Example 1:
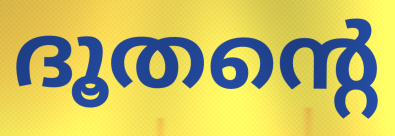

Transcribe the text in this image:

ദൂതന്റെ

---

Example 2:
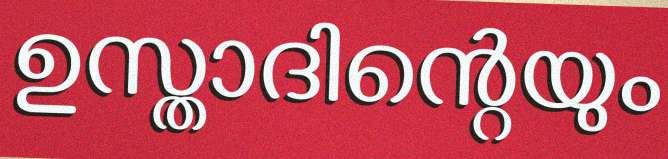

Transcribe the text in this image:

ഉസ്താദിന്റെയും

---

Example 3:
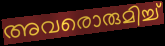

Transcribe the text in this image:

അവരൊരുമിച്ച്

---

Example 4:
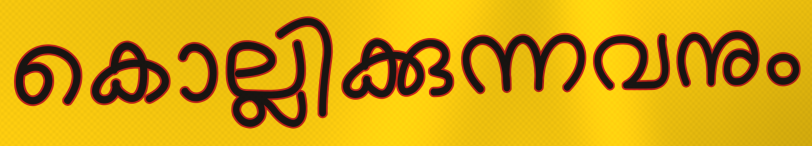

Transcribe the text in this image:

കൊല്ലിക്കുന്നവനും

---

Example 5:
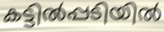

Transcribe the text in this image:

കട്ടിൽപ്പടിയിൽ